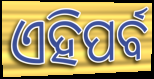
ଏହିପର୍ବ